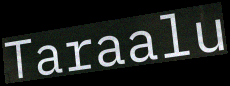
Taraalu